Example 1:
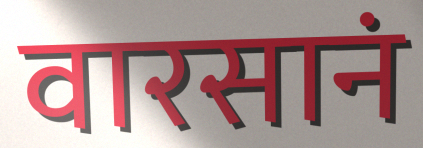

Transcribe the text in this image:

वारसानं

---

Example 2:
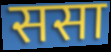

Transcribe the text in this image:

ससा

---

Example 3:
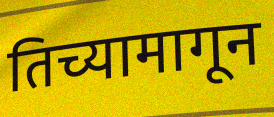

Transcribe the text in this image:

तिच्यामागून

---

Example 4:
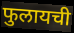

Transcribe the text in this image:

फुलायची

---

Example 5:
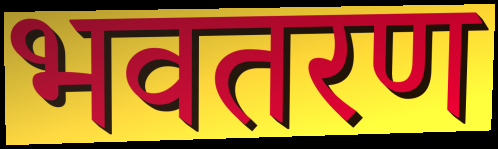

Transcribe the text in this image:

भवतरण